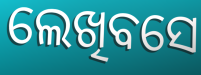
ଲେଖିବସେ